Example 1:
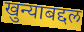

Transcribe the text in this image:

खुन्याबद्दल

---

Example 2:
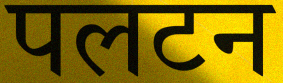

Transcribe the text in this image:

पलटन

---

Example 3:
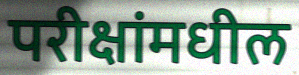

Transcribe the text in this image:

परीक्षांमधील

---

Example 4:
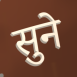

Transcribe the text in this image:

सुने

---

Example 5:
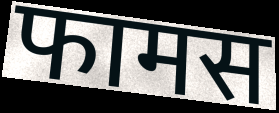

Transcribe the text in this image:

फामस